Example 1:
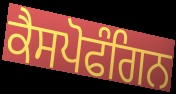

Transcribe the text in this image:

ਕੈਸਪੋਫੰਗਿਨ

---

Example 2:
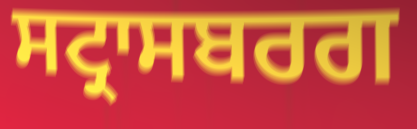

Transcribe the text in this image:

ਸਟ੍ਰਾਸਬਰਗ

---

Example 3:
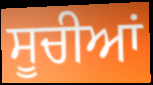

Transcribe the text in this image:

ਸੂਚੀਆਂ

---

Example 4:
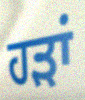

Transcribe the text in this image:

ਹੜਾਂ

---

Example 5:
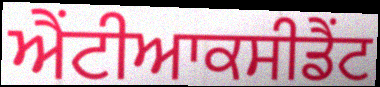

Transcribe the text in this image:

ਐਂਟੀਆਕਸੀਡੈਂਟ